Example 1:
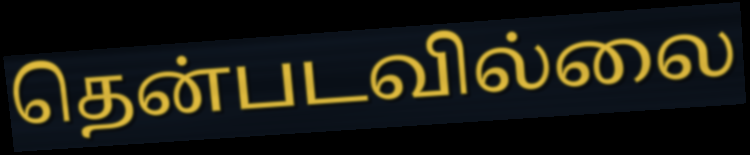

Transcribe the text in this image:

தென்படவில்லை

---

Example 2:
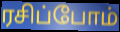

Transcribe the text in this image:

ரசிப்போம்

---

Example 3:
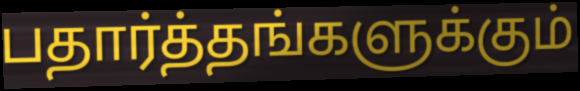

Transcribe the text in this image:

பதார்த்தங்களுக்கும்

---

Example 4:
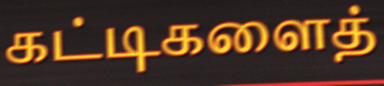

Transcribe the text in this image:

கட்டிகளைத்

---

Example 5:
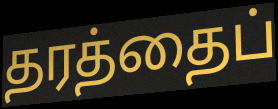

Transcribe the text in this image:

தரத்தைப்